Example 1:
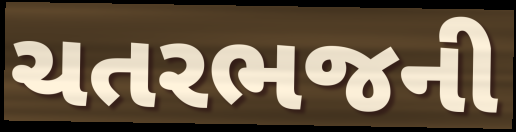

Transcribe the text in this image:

ચતરભજની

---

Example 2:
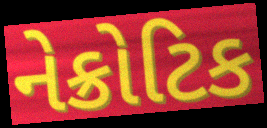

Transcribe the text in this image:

નેક્રોટિક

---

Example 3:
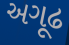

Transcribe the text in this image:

અગૂઢ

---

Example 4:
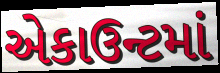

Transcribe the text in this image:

એકાઉન્ટમાં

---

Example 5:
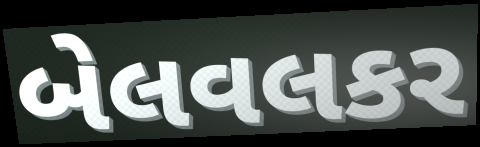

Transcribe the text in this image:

બેલવલકર